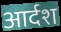
आर्दश